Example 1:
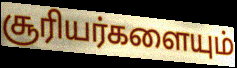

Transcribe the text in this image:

சூரியர்களையும்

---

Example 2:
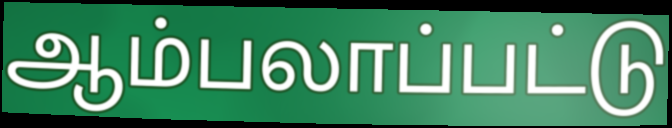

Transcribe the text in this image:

ஆம்பலாப்பட்டு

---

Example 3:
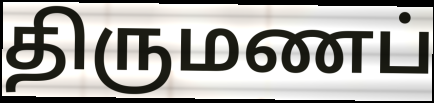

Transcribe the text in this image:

திருமணப்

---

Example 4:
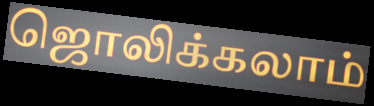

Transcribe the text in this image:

ஜொலிக்கலாம்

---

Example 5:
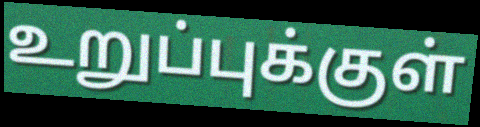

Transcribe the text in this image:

உறுப்புக்குள்